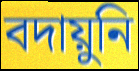
বদায়ুনি